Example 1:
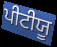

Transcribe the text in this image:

ਪੀਟੀਯੂ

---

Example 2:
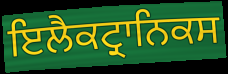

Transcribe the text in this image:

ਇਲੈਕਟ੍ਰਾਨਿਕਸ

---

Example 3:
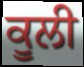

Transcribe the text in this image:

ਕੂਲੀ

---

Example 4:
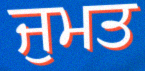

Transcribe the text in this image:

ਜੁਮਤ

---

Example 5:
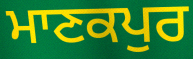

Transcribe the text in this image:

ਮਾਣਕਪੁਰ